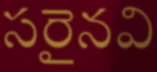
సరైనవి